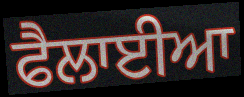
ਫੈਲਾਈਆ